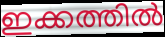
ഇക്കത്തിൽ